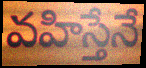
వహిస్తేనే